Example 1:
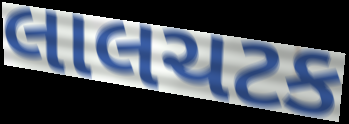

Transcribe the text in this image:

લાલચટક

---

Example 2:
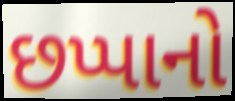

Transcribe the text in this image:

છપ્પાનો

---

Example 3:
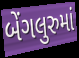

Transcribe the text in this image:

બેંગલુરુમાં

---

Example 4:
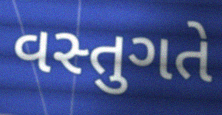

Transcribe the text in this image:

વસ્તુગતે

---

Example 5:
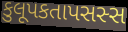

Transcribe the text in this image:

કુલૂપકતાપસસ્સ